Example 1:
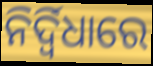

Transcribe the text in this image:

ନିର୍ଦ୍ୱିଧାରେ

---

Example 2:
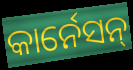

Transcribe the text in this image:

କାର୍ନେସନ୍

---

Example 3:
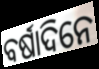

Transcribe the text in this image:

ବର୍ଷାଦିନେ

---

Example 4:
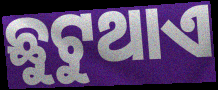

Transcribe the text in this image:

ଛୁଟୁଥାଏ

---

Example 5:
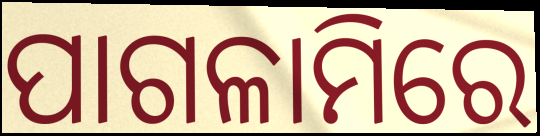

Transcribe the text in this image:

ପାଗଳାମିରେ